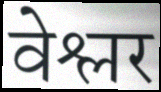
वेश्लर